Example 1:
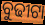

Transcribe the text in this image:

ବୁଢୀଟା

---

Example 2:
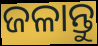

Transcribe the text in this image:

ଜଳାନ୍ତୁ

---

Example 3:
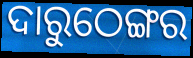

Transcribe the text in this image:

ଦାରୁଠେଙ୍ଗର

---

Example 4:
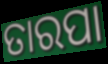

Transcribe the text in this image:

ତାରପା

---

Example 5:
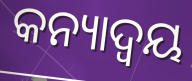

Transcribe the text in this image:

କନ୍ୟାଦ୍ୱୟ